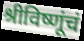
श्रीविष्णूंचं